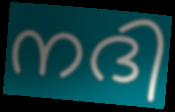
നദി